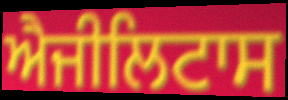
ਐਜੀਲਿਟਾਸ